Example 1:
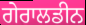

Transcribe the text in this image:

ਗੇਰਾਲਡੀਨ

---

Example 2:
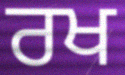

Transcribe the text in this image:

ਰਖ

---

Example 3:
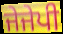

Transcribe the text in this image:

ਜੇਜੇਪੀ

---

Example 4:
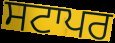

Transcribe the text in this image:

ਸਟਾਪਰ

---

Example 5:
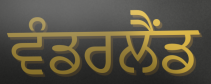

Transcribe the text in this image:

ਵੰਡਰਲੈਂਡ